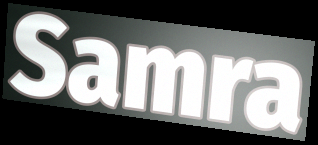
Samra